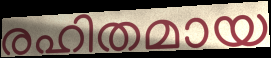
രഹിതമായ